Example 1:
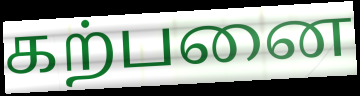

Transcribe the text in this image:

கற்பனை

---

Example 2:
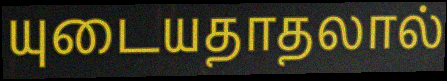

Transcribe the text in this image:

யுடையதாதலால்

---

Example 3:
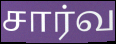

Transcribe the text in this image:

சார்வ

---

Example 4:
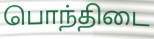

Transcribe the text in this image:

பொந்திடை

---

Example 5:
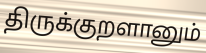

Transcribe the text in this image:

திருக்குறளானும்